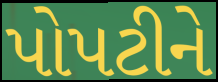
પોપટીને